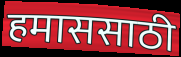
हमाससाठी